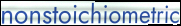
nonstoichiometric